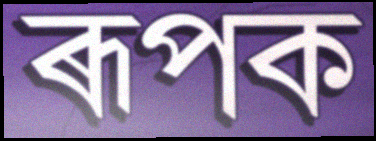
ৰূপক